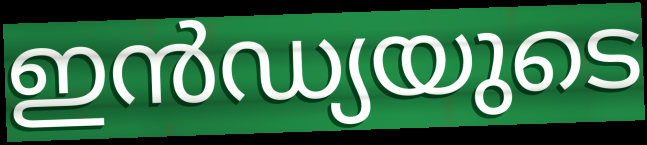
ഇൻഡ്യയുടെ